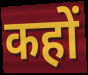
कहों